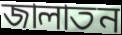
জালাতন